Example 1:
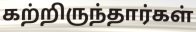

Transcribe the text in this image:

கற்றிருந்தார்கள்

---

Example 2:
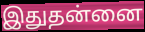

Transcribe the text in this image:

இதுதன்னை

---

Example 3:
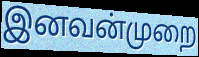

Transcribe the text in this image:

இனவன்முறை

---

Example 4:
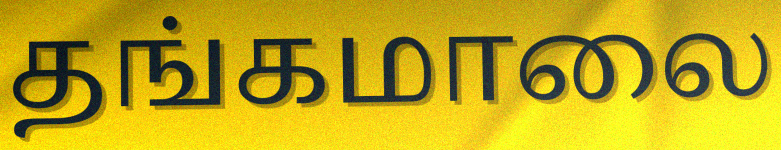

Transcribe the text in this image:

தங்கமாலை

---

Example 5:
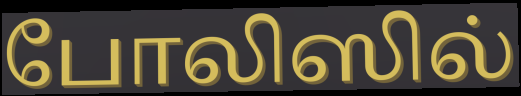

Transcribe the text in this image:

போலிஸில்